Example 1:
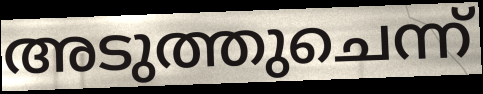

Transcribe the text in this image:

അടുത്തുചെന്ന്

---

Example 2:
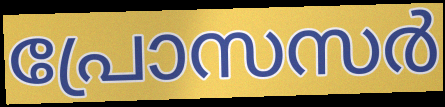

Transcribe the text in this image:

പ്രോസസർ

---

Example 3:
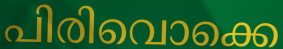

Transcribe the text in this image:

പിരിവൊക്കെ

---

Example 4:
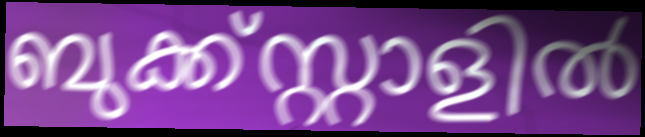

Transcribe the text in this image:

ബുക്ക്സ്റ്റാളിൽ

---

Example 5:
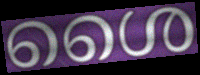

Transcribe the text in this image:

ശൈ